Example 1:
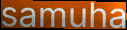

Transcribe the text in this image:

samuha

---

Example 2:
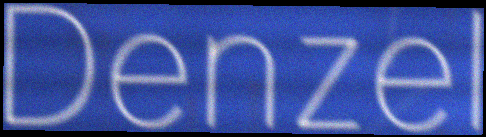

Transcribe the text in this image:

Denzel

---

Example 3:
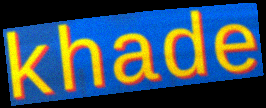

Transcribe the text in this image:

khade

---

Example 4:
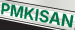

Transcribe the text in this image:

PMKISAN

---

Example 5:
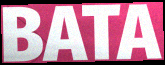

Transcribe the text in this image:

BATA